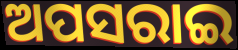
ଅପସରାଇ